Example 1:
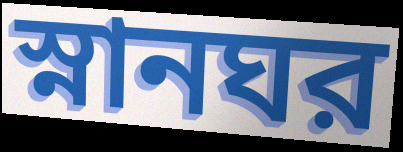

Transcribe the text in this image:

স্নানঘর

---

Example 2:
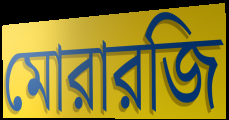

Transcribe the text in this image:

মোরারজি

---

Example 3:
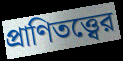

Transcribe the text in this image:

প্রাণিতত্ত্বের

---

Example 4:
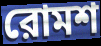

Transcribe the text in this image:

রোমশ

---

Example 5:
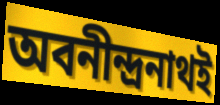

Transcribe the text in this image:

অবনীন্দ্রনাথই